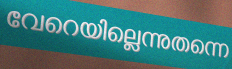
വേറെയില്ലെന്നുതന്നെ